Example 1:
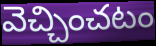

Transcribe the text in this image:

వెచ్చించటం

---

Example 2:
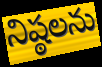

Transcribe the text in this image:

నిష్ఠలను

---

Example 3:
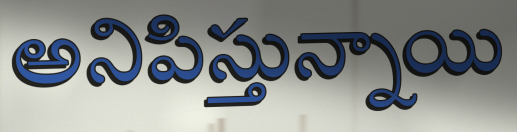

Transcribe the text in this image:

అనిపిస్తున్నాయి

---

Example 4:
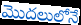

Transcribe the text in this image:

మొదలులోనే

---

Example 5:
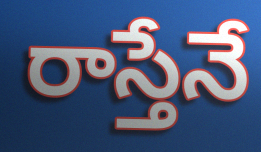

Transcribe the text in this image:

రాస్తేనే